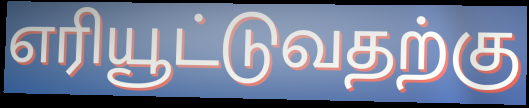
எரியூட்டுவதற்கு